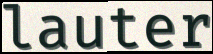
lauter